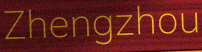
Zhengzhou